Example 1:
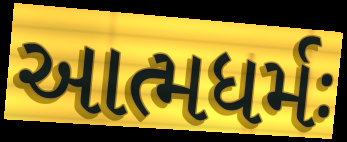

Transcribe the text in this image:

આત્મધર્મઃ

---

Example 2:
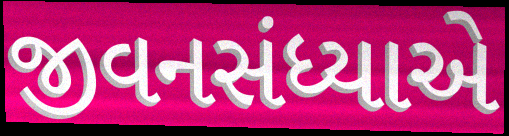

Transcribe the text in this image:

જીવનસંધ્યાએ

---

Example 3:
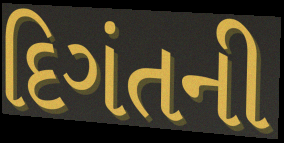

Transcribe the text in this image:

દિગંતની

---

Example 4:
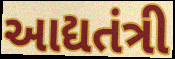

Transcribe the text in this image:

આદ્યતંત્રી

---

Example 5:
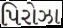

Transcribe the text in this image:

પિરોઝા